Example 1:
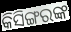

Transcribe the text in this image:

କିସିଙ୍ଗରଙ୍କ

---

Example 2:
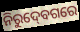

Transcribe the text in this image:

ନିରୁଦ୍‍ବେଗରେ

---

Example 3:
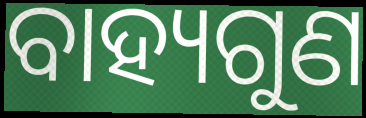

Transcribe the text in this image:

ବାହ୍ୟଗୁଣ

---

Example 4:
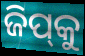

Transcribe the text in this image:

ଜିପ୍‌କୁ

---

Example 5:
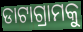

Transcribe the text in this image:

ଡାଟାଗ୍ରାମକୁ